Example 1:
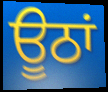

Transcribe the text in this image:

ਊਠਾਂ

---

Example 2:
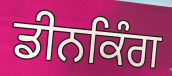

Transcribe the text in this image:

ਡੀਨਕਿੰਗ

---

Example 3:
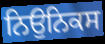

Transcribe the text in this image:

ਨਿਉਨਿਕਸ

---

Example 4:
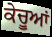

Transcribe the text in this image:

ਕੇਚੂਆਂ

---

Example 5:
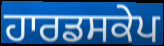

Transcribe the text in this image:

ਹਾਰਡਸਕੇਪ